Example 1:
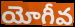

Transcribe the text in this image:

యోగీవ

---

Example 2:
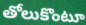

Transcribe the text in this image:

తోలుకొంటూ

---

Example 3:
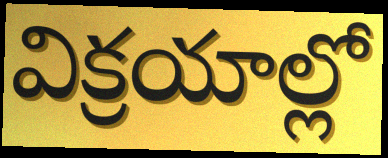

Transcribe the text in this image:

విక్రయాల్లో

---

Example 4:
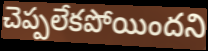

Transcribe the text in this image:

చెప్పలేకపోయిందని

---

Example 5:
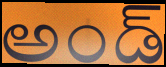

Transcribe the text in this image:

అండ్